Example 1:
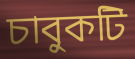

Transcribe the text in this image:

চাবুকটি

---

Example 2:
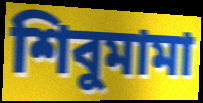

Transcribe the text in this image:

শিবুমামা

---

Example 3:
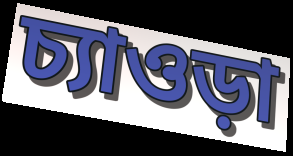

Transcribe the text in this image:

চ্যাওড়া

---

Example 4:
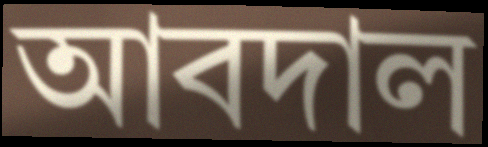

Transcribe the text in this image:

আবদাল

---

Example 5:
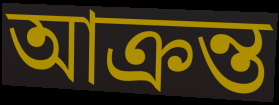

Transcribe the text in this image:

আক্রন্ত